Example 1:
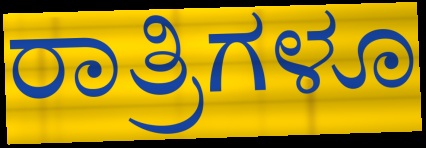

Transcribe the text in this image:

ರಾತ್ರಿಗಳೂ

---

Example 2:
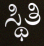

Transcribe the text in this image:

ಸ್ಥಿತಿ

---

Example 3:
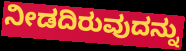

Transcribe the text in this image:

ನೀಡದಿರುವುದನ್ನು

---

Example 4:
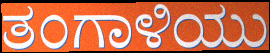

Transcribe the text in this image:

ತಂಗಾಳಿಯು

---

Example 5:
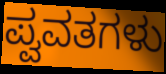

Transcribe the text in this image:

ಪ್ವವತಗಳು